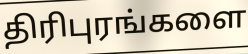
திரிபுரங்களை